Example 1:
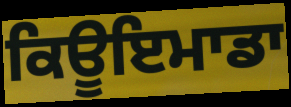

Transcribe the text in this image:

ਕਿਊਇਮਾਡਾ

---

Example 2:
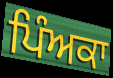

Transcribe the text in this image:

ਪਿੰਅਕਾ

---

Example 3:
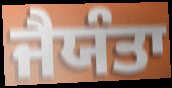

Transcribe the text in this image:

ਜੈਯੰਤਾ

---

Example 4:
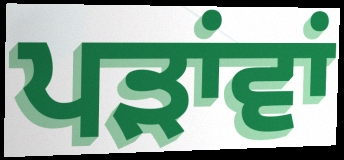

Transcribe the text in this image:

ਪੜਾਂਵਾਂ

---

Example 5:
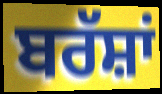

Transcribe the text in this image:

ਬਰੱਸ਼ਾਂ